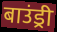
बाउंड्री